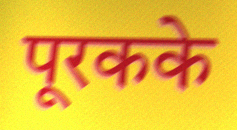
पूरकके